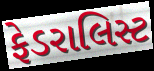
ફેડરાલિસ્ટ